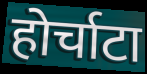
होर्चाटा